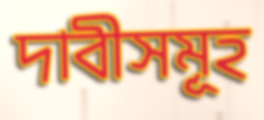
দাবীসমূহ